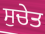
ਸੁਚੇਤ